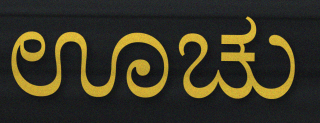
ಊಚು